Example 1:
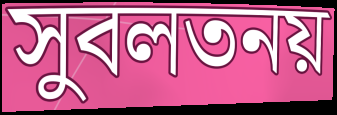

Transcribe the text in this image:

সুবলতনয়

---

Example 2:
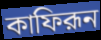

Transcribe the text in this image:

কাফিরূন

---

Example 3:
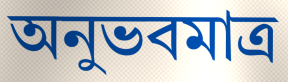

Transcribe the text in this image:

অনুভবমাত্র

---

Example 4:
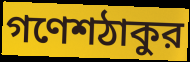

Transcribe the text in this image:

গণেশঠাকুর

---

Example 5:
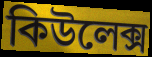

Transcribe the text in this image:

কিউলেক্স